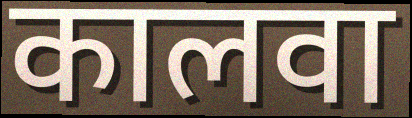
कालवा